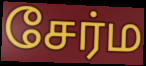
சேர்ம